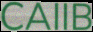
CAIIB